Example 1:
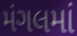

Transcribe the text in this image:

મંગલમાં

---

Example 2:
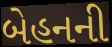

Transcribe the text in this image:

બેહનની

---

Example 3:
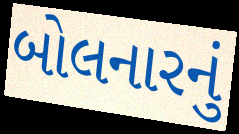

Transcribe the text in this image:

બોલનારનું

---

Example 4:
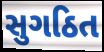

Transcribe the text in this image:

સુગઠિત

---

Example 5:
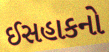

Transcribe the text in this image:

ઈસહાકનો